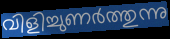
വിളിച്ചുണർത്തുന്നു